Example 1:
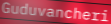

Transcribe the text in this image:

Guduvancheri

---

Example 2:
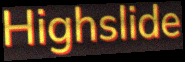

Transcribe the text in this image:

Highslide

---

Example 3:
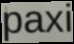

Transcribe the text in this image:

paxi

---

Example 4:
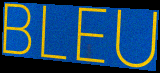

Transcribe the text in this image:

BLEU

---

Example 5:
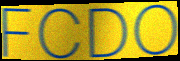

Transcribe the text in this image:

FCDO